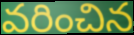
వరించిన